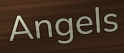
Angels